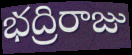
భద్రిరాజు